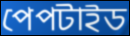
পেপটাইড